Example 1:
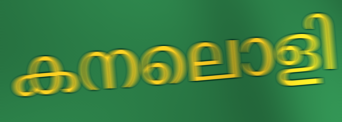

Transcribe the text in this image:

കനലൊളി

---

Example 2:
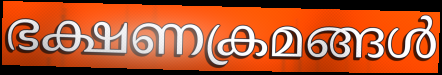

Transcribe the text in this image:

ഭക്ഷണക്രമങ്ങൾ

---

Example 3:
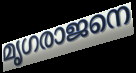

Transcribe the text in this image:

മൃഗരാജനെ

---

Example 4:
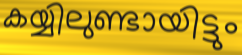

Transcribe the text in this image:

കയ്യിലുണ്ടായിട്ടും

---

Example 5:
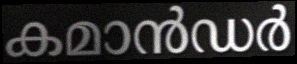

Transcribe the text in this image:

കമാൻഡർ